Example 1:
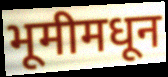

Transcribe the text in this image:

भूमीमधून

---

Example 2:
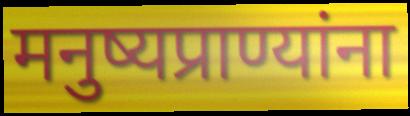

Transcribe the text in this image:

मनुष्यप्राण्यांना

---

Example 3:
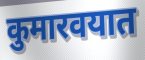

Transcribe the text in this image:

कुमारवयात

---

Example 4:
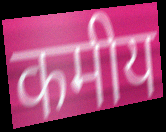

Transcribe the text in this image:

कमीय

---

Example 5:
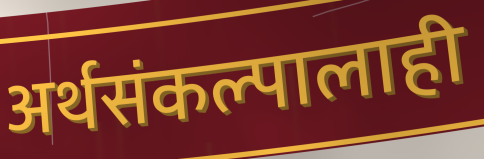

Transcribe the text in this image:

अर्थसंकल्पालाही